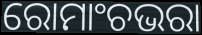
ରୋମାଂଚଭରା